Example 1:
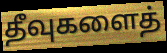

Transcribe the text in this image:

தீவுகளைத்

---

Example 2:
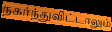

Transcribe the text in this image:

நகர்ந்துவிட்டாலும்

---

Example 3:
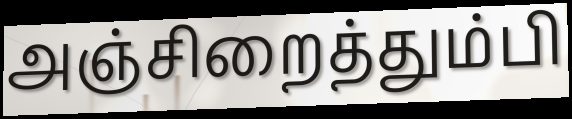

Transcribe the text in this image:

அஞ்சிறைத்தும்பி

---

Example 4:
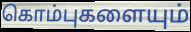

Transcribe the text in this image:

கொம்புகளையும்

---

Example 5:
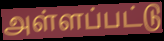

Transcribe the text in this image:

அள்ளப்பட்டு